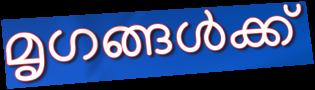
മൃഗങ്ങൾക്ക്